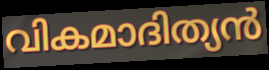
വികമാദിത്യൻ